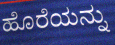
ಹೊರೆಯನ್ನು